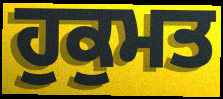
ਹੁਕੁਮਤ